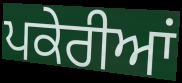
ਪਕੇਰੀਆਂ